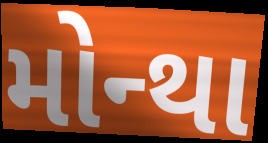
મોન્થા